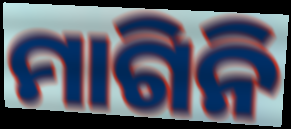
ମାଗିନି